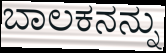
ಬಾಲಕನನ್ನು